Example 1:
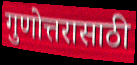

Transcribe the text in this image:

गुणोत्तरासाठी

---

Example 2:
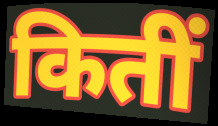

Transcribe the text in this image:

कितीं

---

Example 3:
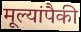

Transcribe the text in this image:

मूल्यांपैकी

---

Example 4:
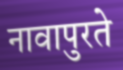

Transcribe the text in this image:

नावापुरते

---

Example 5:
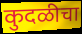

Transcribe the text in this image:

कुदळीचा